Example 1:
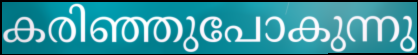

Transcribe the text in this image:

കരിഞ്ഞുപോകുന്നു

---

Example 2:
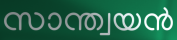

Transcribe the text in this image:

സാന്ത്വയൻ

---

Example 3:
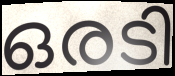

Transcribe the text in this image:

ഒരടി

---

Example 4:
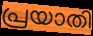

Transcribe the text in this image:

പ്രയാതി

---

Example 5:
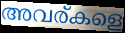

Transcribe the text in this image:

അവര്കളെ